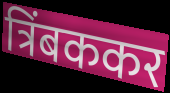
त्रिंबककर